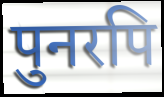
पुनरपि